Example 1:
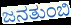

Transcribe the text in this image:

ಜನತುಂಬಿ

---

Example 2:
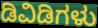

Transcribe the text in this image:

ಡಿವಿಡಿಗಳು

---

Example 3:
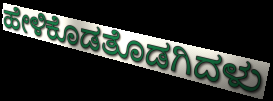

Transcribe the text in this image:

ಹೇಳಿಕೊಡತೊಡಗಿದಳು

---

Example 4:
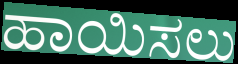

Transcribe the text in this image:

ಹಾಯಿಸಲು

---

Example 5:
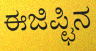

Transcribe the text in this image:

ಈಜಿಪ್ಟಿನ